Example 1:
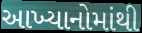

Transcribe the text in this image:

આખ્યાનોમાંથી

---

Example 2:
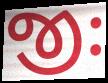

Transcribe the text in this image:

જીઃ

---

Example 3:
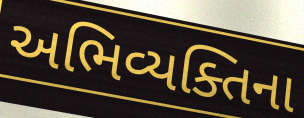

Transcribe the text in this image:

અભિવ્યક્તિના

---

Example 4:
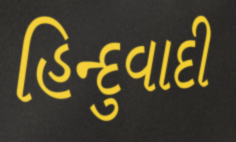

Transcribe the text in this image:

હિન્દુવાદી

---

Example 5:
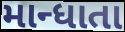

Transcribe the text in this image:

માન્ધાતા